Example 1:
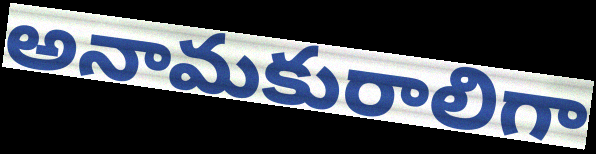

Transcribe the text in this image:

అనామకురాలిగా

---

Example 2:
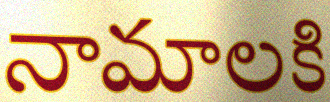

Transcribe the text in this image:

నామాలకి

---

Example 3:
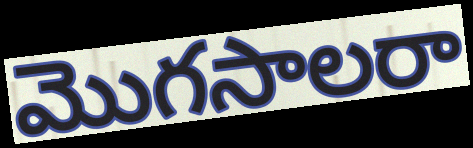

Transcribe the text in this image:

మొగసాలరా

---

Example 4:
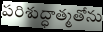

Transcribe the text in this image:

పరిశుద్ధాత్మతోను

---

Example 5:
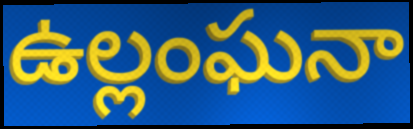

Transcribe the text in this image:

ఉల్లంఘనా